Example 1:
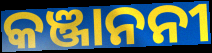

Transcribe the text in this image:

କଞ୍ଜାନନୀ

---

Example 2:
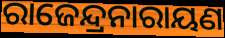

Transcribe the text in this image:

ରାଜେନ୍ଦ୍ରନାରାୟଣ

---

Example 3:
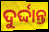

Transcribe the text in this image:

ଦୁର୍ଦ୍ଦାନ୍ତ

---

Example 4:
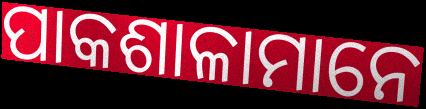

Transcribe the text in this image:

ପାକଶାଳାମାନେ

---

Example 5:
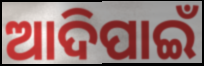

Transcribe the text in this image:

ଆଦିପାଇଁ